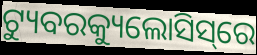
ଟ୍ୟୁବରକ୍ୟୁଲୋସିସ୍‌ରେ